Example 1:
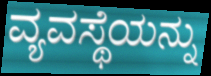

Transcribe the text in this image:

ವ್ಯವಸ್ಥೆಯನ್ನು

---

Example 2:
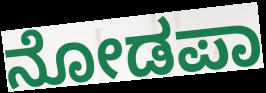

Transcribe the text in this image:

ನೋಡಪಾ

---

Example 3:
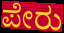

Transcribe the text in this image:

ಪೇರು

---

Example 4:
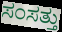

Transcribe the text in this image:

ಸಂಸತ್ತು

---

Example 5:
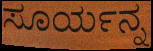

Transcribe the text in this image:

ಸೂರ್ಯನ್ನ